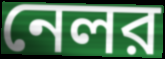
নেলর